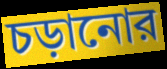
চড়ানোর